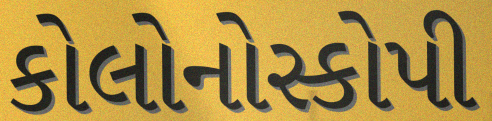
કોલોનોસ્કોપી